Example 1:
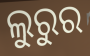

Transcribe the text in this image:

ଲୁରୁର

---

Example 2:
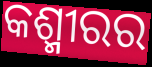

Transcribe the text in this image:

କଶ୍ମୀରର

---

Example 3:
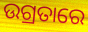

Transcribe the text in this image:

ଉଗ୍ରତାରେ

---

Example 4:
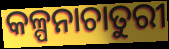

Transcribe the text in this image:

କଳ୍ପନାଚାତୁରୀ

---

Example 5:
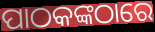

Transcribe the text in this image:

ପାଠକଙ୍କଠାରେ